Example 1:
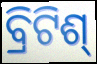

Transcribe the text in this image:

ବ୍ରିଟିଶ୍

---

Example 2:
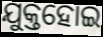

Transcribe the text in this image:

ଯୁକ୍ତହୋଇ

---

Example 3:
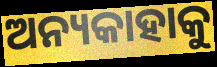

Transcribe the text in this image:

ଅନ୍ୟକାହାକୁ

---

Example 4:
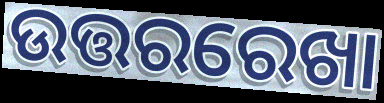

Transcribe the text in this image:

ଉତ୍ତରରେଖା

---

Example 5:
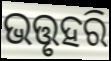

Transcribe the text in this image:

ଭତ୍ତୃହରି